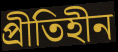
প্রীতিহীন